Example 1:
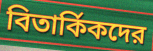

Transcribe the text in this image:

বিতার্কিকদের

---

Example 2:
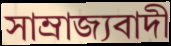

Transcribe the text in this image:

সাম্রাজ্যবাদী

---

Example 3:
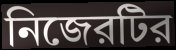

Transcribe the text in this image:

নিজেরটির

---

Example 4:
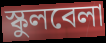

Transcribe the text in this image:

স্কুলবেলা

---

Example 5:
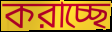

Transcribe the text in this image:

করাচ্ছে